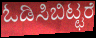
ಓಡಿಸಿಬಿಟ್ಟರೆ